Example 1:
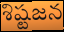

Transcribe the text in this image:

శిష్టజన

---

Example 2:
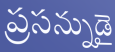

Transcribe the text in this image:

ప్రసన్నుడై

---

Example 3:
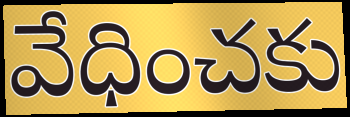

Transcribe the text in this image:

వేధించకు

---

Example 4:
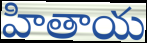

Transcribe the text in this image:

హితాయ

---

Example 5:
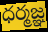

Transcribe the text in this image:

ధర్మజ్ఞ